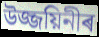
উজ্জয়িনীৰ